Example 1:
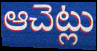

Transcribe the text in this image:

ఆచెట్లు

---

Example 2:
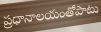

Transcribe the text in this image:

ప్రధానాలయంతోపాటు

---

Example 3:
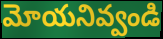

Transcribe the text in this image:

మోయనివ్వండి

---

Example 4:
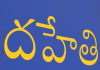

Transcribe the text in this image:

దహేతి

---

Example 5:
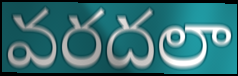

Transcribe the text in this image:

వరదలా